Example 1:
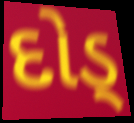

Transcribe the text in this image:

દોડ્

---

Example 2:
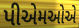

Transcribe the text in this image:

પીએમઓએ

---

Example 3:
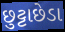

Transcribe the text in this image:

છુટ્ટાછેડા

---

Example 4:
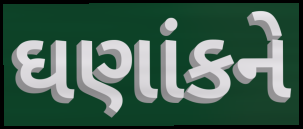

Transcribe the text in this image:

ઘણાંકને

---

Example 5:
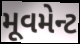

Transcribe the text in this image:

મૂવમેન્ટ